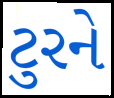
ટુરને